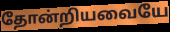
தோன்றியவையே